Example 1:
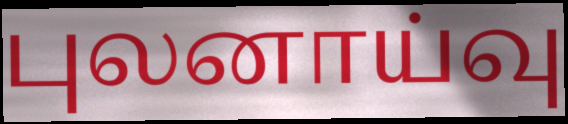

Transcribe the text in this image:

புலனாய்வு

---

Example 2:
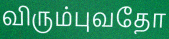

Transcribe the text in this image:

விரும்புவதோ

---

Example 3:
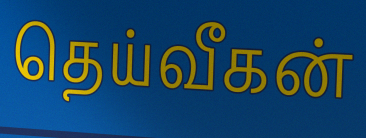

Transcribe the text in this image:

தெய்வீகன்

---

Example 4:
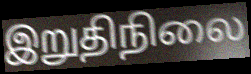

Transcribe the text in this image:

இறுதிநிலை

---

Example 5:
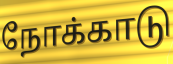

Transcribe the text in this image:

நோக்காடு